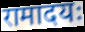
रामादयः